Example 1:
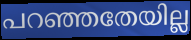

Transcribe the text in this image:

പറഞ്ഞതേയില്ല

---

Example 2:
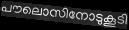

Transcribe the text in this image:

പൗലൊസിനോടുകൂടി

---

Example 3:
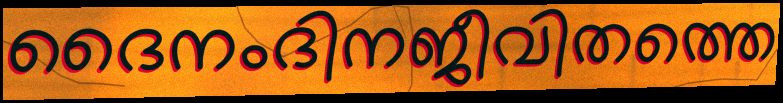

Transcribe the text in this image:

ദൈനംദിനജീവിതത്തെ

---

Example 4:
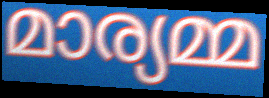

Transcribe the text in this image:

മാര്യമ്മ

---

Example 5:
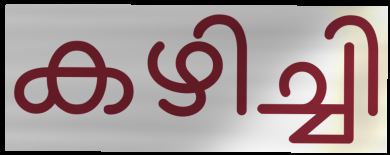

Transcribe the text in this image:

കഴിച്ചി